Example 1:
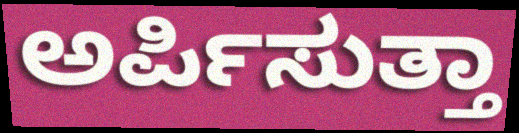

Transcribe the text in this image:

ಅರ್ಪಿಸುತ್ತಾ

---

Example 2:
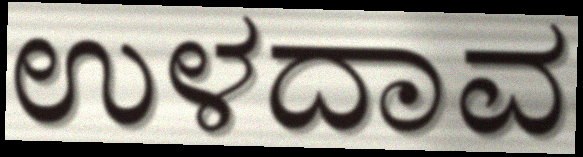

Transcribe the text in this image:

ಉಳದಾವ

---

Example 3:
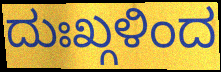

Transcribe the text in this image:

ದುಃಖ್ಗಳಿಂದ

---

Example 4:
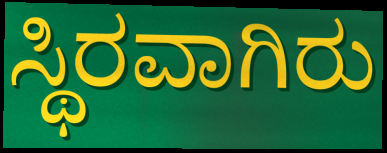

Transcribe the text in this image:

ಸ್ಥಿರವಾಗಿರು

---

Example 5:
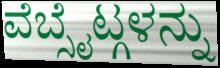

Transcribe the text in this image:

ವೆಬ್ಸೈಟ್ಗಳನ್ನು